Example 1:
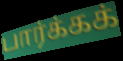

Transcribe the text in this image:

பார்க்கக்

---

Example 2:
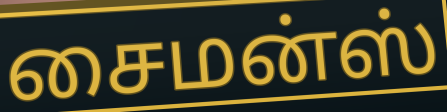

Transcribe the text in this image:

சைமன்ஸ்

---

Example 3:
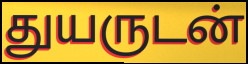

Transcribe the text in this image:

துயருடன்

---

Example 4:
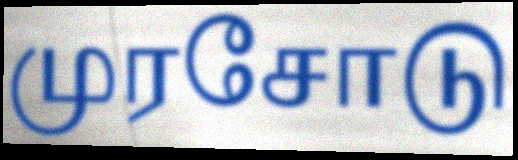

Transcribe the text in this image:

முரசோடு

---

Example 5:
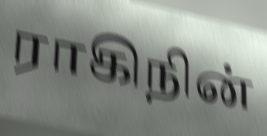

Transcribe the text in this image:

ராகிநின்